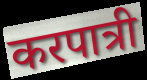
करपात्री